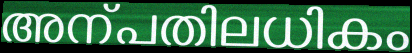
അന്പതിലധികം